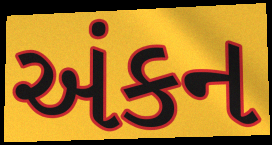
અંકન